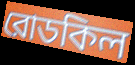
রোডকিল